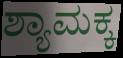
ಶ್ಯಾಮಕ್ಕ